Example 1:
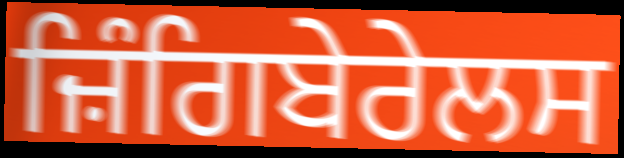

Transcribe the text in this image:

ਜ਼ਿੰਗਿਬੇਰੇਲਸ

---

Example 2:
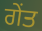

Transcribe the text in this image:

ਗੇਂਤ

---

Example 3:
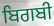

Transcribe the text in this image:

ਬਿਗਬੀ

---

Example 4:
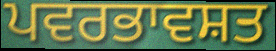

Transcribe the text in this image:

ਪਵਰਭਾਵਸ਼ਤ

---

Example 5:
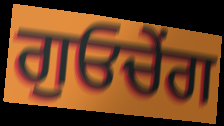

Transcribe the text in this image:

ਗੁਓਚੇਂਗ